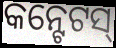
କନ୍ଟେଟସ୍